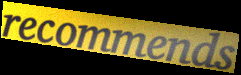
recommends